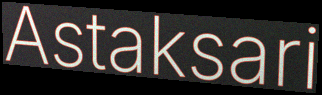
Astaksari